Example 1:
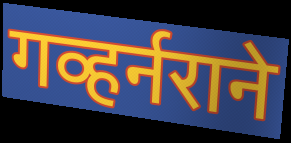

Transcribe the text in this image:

गव्हर्नराने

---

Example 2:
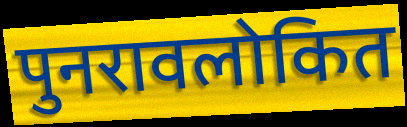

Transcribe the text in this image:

पुनरावलोकित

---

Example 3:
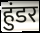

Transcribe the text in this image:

हुंडर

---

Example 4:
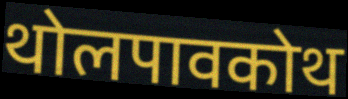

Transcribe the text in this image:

थोलपावकोथ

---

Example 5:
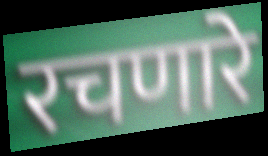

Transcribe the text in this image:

रचणारे